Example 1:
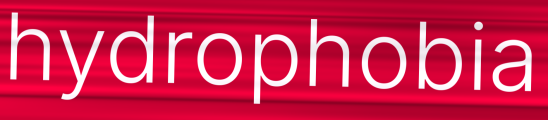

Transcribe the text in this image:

hydrophobia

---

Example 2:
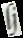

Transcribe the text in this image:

lj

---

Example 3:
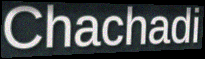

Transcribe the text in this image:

Chachadi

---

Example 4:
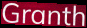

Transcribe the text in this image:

Granth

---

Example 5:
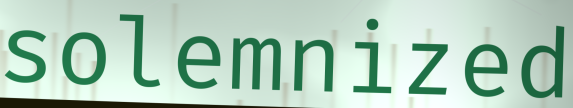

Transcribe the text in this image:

solemnized